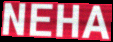
NEHA